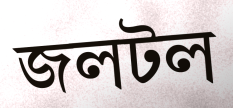
জলটল